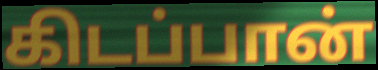
கிடப்பான்